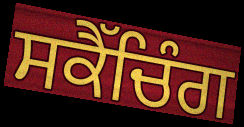
ਸਕੈੱਚਿੰਗ